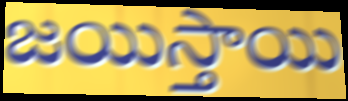
జయిస్తాయి